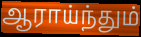
ஆராய்ந்தும்